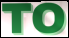
TO